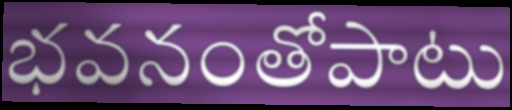
భవనంతోపాటు